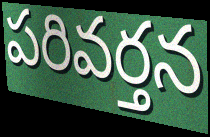
పరివర్తన